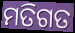
ମତିଗତ